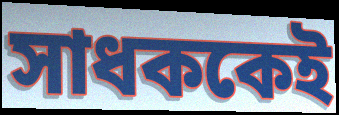
সাধককেই